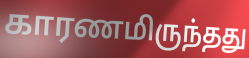
காரணமிருந்தது